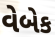
વેબેક